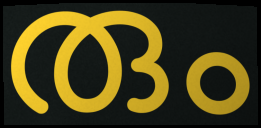
രും